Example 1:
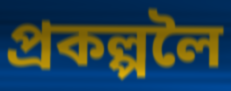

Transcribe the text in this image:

প্ৰকল্পলৈ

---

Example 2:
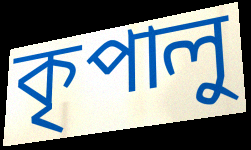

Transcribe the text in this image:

কৃপালু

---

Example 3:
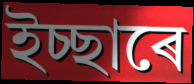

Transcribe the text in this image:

ইচ্ছাৰে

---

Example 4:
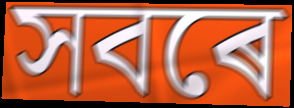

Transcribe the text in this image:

সবৰে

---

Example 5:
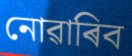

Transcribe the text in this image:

নোৱাৰিব